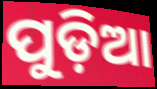
ପୁଡ଼ିଆ